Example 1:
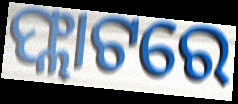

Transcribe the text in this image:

ଫ୍ଲାଟରେ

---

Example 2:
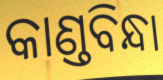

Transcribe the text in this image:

କାଣ୍ଡବିନ୍ଧା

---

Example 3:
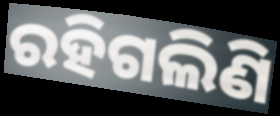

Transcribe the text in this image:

ରହିଗଲିଣି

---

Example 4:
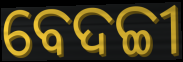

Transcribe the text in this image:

ବେଦଚ୍ଚୀ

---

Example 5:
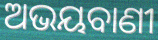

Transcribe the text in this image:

ଅଭୟବାଣୀ